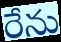
రేను